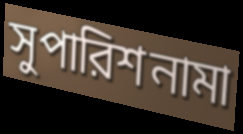
সুপারিশনামা